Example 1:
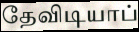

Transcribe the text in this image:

தேவிடியாப்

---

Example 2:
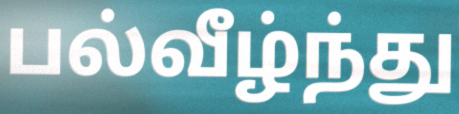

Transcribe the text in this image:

பல்வீழ்ந்து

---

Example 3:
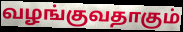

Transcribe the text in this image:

வழங்குவதாகும்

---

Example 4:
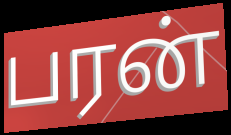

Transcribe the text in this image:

பரன்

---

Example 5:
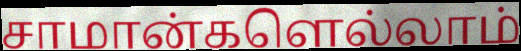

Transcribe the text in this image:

சாமான்களெல்லாம்